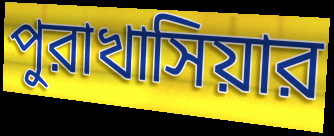
পুরাখাসিয়ার